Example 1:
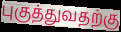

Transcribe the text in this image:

புகுத்துவதற்கு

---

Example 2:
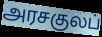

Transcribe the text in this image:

அரசகுலப்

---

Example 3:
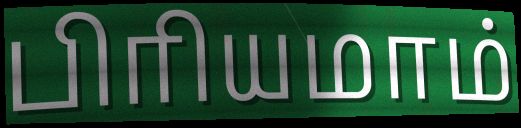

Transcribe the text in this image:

பிரியமாம்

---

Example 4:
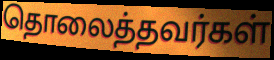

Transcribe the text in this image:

தொலைத்தவர்கள்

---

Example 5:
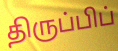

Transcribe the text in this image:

திருப்பிப்